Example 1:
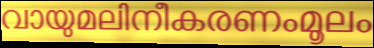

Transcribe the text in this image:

വായുമലിനീകരണംമൂലം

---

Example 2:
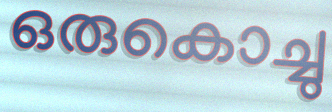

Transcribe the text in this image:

ഒരുകൊച്ചു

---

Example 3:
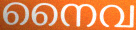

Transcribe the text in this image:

നൈവ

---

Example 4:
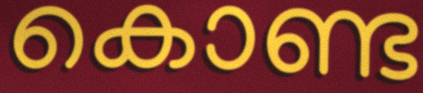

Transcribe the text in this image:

കൊണ്ട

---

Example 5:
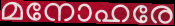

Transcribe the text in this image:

മനോഹരേ